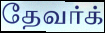
தேவர்க்